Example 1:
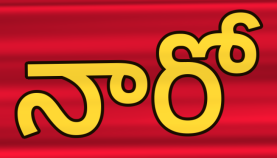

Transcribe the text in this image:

నారో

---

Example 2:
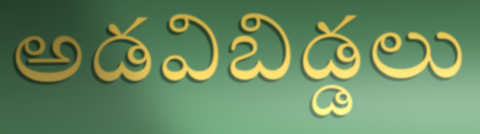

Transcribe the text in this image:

అడవిబిడ్డలు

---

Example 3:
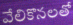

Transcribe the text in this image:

వేలికొనలతో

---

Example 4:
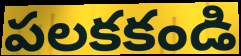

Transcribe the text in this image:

పలకకండి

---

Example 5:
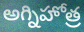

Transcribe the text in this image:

అగ్నిహోత్ర